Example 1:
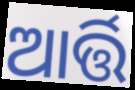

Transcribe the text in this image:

ଆର୍ତ୍ତି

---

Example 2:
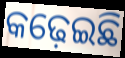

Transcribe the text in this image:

କଢ଼େଇଛି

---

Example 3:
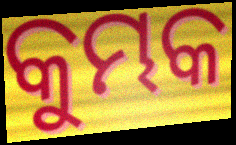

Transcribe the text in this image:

କୁମ୍ଭକ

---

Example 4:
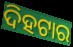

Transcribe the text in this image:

ଦିହଟାର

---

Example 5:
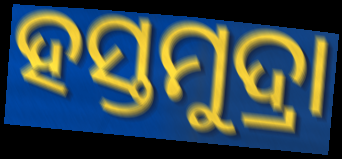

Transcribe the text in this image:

ହସ୍ତମୁଦ୍ରା